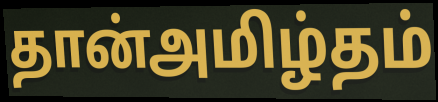
தான்அமிழ்தம்